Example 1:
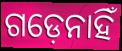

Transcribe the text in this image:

ଗଡ଼େନାହିଁ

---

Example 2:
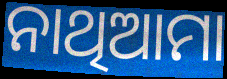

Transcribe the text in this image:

ନାଥିଆମା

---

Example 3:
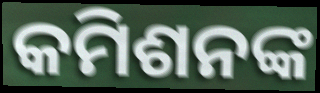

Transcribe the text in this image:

କମିଶନଙ୍କ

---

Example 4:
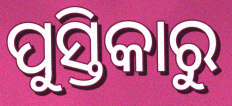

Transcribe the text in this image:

ପୁସ୍ତିକାରୁ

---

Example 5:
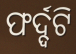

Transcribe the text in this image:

ଫର୍ଦ୍ଦଟି